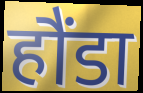
हौंडा